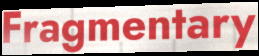
Fragmentary